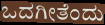
ಒದಗೀತೆಂದು